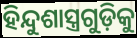
ହିନ୍ଦୁଶାସ୍ତ୍ରଗୁଡ଼ିକୁ